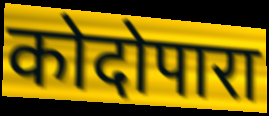
कोदोपारा